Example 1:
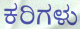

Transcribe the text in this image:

ಕರಿಗಳು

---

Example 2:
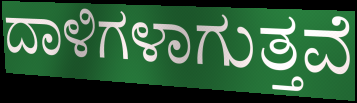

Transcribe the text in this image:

ದಾಳಿಗಳಾಗುತ್ತವೆ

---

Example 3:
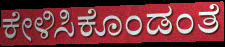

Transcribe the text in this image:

ಕೇಳಿಸಿಕೊಂಡಂತೆ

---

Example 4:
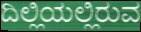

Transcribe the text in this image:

ದಿಲ್ಲಿಯಲ್ಲಿರುವ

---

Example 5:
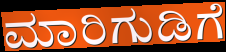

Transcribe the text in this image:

ಮಾರಿಗುಡಿಗೆ